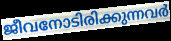
ജീവനോടിരിക്കുന്നവർ